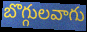
బొగ్గులవాగు